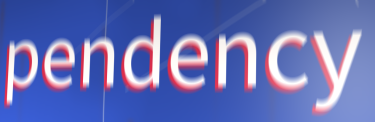
pendency